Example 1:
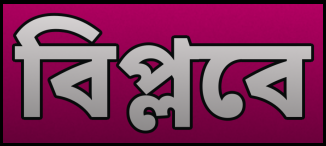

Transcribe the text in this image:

বিপ্লবে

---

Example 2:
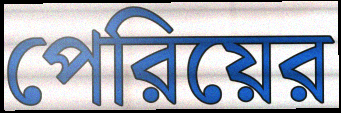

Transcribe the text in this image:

পেরিয়ের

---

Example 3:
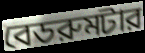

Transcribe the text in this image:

বেডরুমটার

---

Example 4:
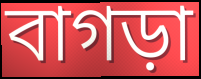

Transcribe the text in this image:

বাগড়া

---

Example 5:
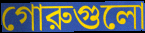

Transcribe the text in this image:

গোরুগুলো